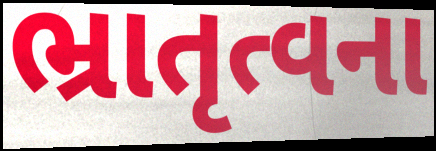
ભ્રાતૃત્વના